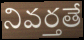
నివర్తతే